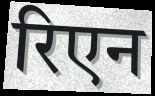
रिएन